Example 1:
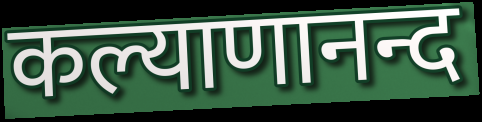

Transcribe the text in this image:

कल्याणानन्द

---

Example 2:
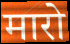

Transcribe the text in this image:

मारो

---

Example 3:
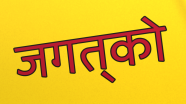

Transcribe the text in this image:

जगत्‌को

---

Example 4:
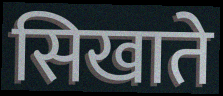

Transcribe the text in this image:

सिखाते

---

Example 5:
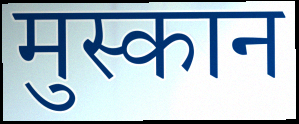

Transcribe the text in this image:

मुस्कान